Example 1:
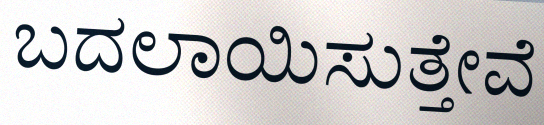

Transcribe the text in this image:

ಬದಲಾಯಿಸುತ್ತೇವೆ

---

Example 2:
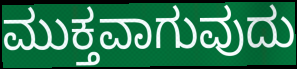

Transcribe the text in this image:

ಮುಕ್ತವಾಗುವುದು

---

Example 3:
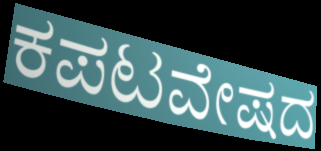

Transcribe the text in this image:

ಕಪಟವೇಷದ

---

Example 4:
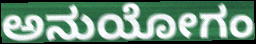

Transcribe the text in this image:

ಅನುಯೋಗಂ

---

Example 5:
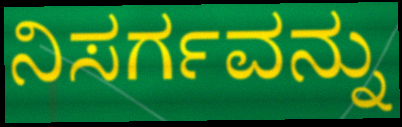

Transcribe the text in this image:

ನಿಸರ್ಗವನ್ನು